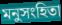
মনুসংহিতা